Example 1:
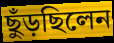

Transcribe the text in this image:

ছুঁড়ছিলেন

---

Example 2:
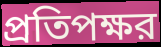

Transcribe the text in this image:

প্রতিপক্ষর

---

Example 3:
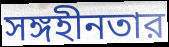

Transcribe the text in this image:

সঙ্গহীনতার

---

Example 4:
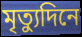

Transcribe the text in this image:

মৃত্যুদিনে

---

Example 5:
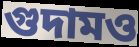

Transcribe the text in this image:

গুদামও